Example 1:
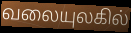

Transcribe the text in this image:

வலையுலகில்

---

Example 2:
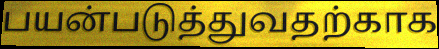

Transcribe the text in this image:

பயன்படுத்துவதற்காக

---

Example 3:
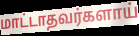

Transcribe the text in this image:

மாட்டாதவர்களாய்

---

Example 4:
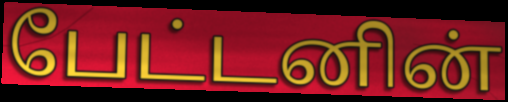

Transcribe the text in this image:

பேட்டனின்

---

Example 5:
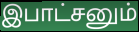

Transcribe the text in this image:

இபாட்சனும்